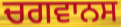
ਚਗਵਾਨਸ